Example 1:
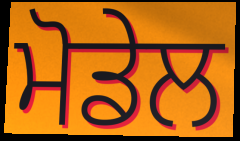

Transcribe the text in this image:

ਮੋਡੇਲ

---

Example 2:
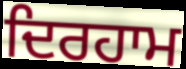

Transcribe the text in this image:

ਦਿਰਹਾਮ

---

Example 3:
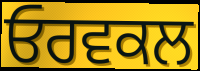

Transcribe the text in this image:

ਓਰਵਕਲ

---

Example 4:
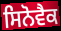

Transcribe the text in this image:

ਸਿਨੋਵੈਕ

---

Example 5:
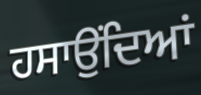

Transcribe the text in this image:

ਹਸਾਉਂਦਿਆਂ